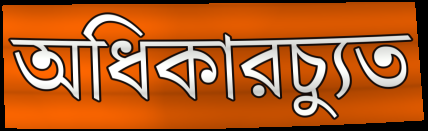
অধিকারচ্যুত